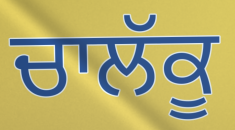
ਚਾਲੱਕੂ